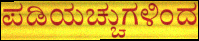
ಪಡಿಯಚ್ಚುಗಳಿಂದ